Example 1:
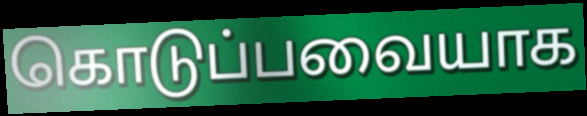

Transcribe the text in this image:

கொடுப்பவையாக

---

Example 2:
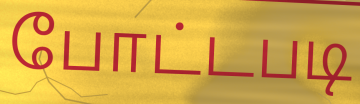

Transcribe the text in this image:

போட்டபடி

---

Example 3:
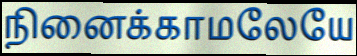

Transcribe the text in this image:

நினைக்காமலேயே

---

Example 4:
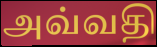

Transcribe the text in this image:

அவ்வதி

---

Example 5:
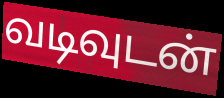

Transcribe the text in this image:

வடிவுடன்